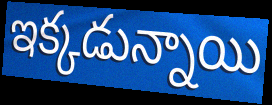
ఇక్కడున్నాయి